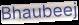
Bhaubeej